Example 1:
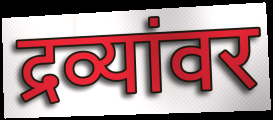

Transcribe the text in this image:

द्रव्यांवर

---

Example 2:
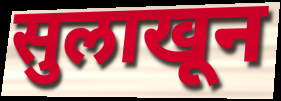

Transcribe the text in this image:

सुलाखून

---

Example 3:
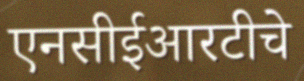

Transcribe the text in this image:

एनसीईआरटीचे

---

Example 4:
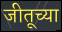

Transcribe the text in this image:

जीतूच्या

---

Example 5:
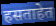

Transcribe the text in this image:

हसताहेत